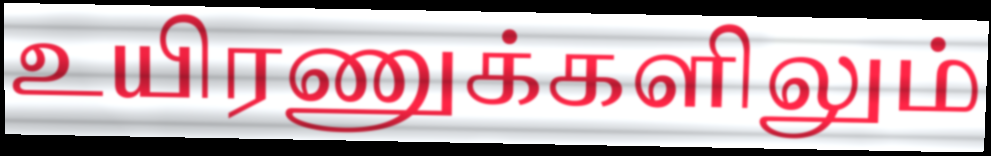
உயிரணுக்களிலும்